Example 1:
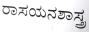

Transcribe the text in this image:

ರಾಸಯನಶಾಸ್ತ್ರ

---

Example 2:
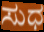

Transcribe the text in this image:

ಸುಧ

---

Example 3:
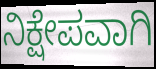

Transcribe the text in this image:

ನಿಕ್ಷೇಪವಾಗಿ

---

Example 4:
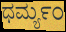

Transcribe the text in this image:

ಧರ್ಮ್ಯಂ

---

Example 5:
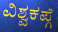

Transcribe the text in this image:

ವಿಶ್ವಕಪ್ಗೆ